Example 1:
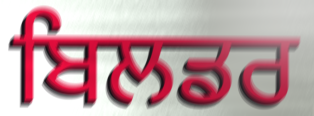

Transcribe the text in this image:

ਬਿਲਡਰ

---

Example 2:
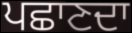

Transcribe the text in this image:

ਪਛਾਣਦਾ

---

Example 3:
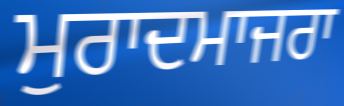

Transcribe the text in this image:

ਮੁਰਾਦਮਾਜਰਾ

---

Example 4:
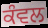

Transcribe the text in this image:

ਕੰਵਲ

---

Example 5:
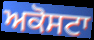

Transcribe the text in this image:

ਅਕੋਸਟਾ